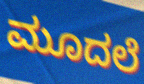
ಮೂದಲೆ